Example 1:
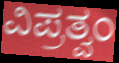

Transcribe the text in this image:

ವಿಪ್ರತ್ವಂ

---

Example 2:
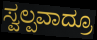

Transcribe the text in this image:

ಸ್ವಲ್ಪವಾದ್ರೂ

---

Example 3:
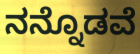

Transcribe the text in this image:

ನನ್ನೊಡವೆ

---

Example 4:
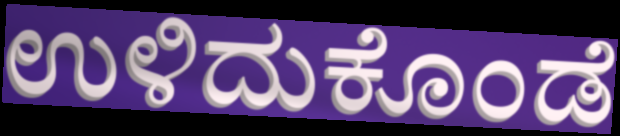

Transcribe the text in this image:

ಉಳಿದುಕೊಂಡೆ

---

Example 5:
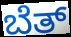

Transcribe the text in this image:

ಬೆತ್